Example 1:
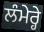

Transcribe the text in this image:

ਲੰਮੇਰ੍ਹੇ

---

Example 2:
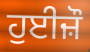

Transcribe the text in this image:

ਹੁਈਜ਼ੌ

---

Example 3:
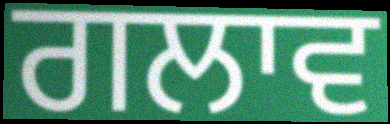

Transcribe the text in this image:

ਗਲਾਵ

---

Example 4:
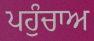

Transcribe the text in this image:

ਪਹੁੰਚਾਅ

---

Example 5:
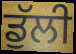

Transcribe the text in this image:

ਡੁੱਲੀ